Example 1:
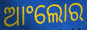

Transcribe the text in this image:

ଆଂଲୋର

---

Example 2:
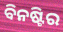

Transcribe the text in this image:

ବିନଷ୍ଟିର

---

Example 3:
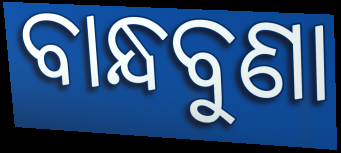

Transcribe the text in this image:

ବାନ୍ଧବୁଣା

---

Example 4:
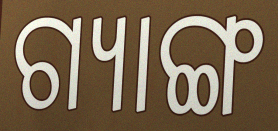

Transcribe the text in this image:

ଗ୍ୟାଙ୍ଗ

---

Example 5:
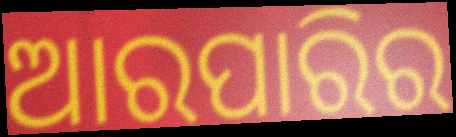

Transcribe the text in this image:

ଆରପାରିର